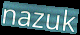
nazuk